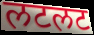
लटलट